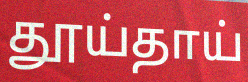
தூய்தாய்